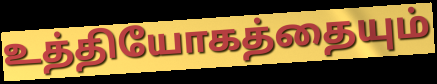
உத்தியோகத்தையும்